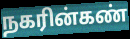
நகரின்கண்